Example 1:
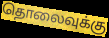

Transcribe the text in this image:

தொலைவுக்கு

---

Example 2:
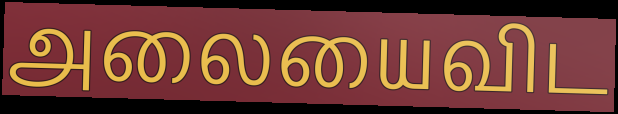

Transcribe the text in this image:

அலையைவிட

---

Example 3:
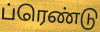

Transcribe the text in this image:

ப்ரெண்டு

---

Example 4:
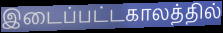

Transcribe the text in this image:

இடைப்பட்டகாலத்தில்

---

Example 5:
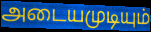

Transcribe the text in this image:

அடையமுடியும்